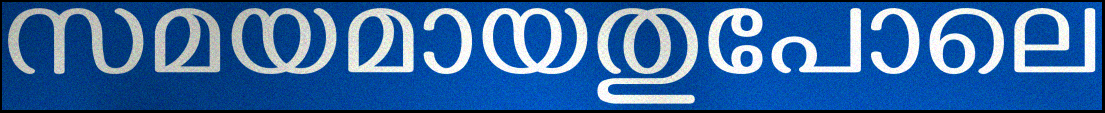
സമയമായതുപോലെ